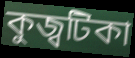
কুজ্বটিকা